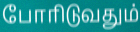
போரிடுவதும்